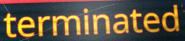
terminated